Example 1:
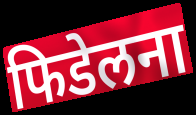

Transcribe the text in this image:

फिडेलना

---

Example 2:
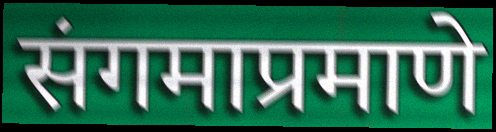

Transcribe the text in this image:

संगमाप्रमाणे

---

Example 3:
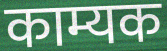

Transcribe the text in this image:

काम्यक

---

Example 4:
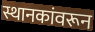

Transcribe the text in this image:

स्थानकांवरून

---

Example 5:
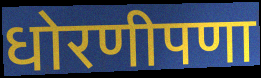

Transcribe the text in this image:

धोरणीपणा